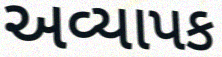
અવ્યાપક